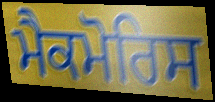
ਮੈਕਮੋਰਿਸ